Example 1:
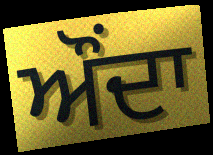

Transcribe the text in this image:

ਔਂਦਾ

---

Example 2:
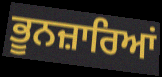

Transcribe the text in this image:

ਭੂਨਜ਼ਾਰਿਆਂ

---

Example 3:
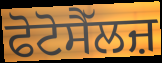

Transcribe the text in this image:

ਫੋਟੋਸੈੱਲਜ਼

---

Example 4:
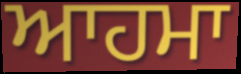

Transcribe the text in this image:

ਆਹਮਾ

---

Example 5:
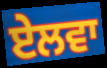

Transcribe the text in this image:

ਏਲਵਾ